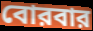
বোরবার